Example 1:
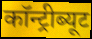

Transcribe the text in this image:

कॉन्ट्रीब्यूट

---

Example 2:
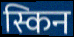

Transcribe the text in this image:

स्‍किन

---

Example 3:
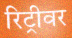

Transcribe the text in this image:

रिट्रीवर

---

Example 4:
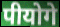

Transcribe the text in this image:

पीयोगे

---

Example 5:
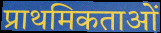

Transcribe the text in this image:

प्राथमिकताओं